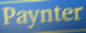
Paynter